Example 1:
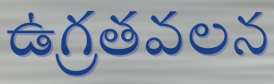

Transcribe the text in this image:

ఉగ్రతవలన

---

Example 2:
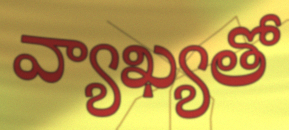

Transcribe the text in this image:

వ్యాఖ్యతో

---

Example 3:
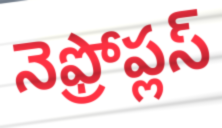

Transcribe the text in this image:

నెఫ్రోప్లస్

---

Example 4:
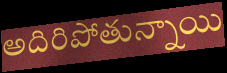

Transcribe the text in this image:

అదిరిపోతున్నాయి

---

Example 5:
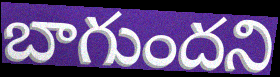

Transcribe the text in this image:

బాగుందని